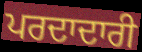
ਪਰਦਾਦਾਰੀ